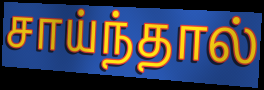
சாய்ந்தால்